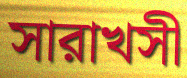
সারাখসী